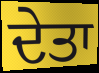
ਦੇਤਾ